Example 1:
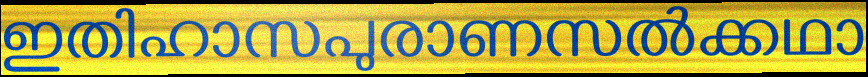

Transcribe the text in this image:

ഇതിഹാസപുരാണസൽക്കഥാ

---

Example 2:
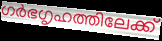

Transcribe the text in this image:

ഗർഭഗൃഹത്തിലേക്ക്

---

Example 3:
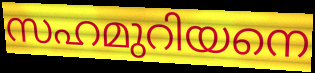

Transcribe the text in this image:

സഹമുറിയനെ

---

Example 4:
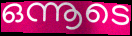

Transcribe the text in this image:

ഒന്നൂടെ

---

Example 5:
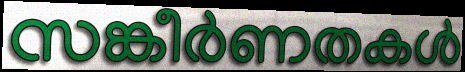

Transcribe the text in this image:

സങ്കീർണതകൾ